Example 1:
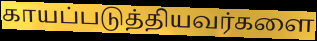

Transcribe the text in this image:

காயப்படுத்தியவர்களை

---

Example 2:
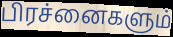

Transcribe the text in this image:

பிரச்னைகளும்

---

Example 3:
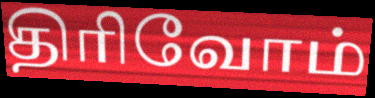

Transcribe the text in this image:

திரிவோம்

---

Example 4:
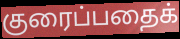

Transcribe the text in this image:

குரைப்பதைக்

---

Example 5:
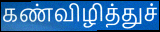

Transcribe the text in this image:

கண்விழித்துச்